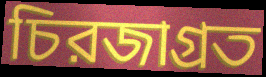
চিরজাগ্রত